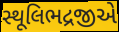
સ્થૂલિભદ્રજીએ